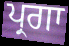
ਪ੍ਰਗਾ